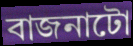
বাজনাটো